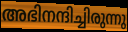
അഭിനന്ദിച്ചിരുന്നു